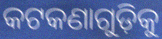
କଟକଣାଗୁଡ଼ିକୁ